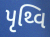
પૃથ્વિ